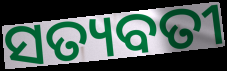
ସତ୍ୟବତୀ